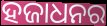
ହଜାଧନର